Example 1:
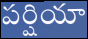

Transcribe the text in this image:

పర్షియా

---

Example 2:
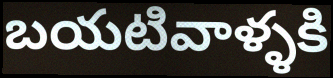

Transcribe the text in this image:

బయటివాళ్ళకి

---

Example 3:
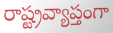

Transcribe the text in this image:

రాష్ట్రవ్యాప్తంగా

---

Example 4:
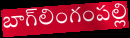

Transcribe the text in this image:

బాగ్‌లింగంపల్లి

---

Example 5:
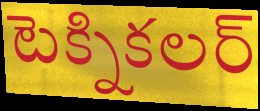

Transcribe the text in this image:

టెక్నికలర్